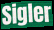
Sigler